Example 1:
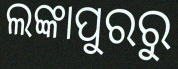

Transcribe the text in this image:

ଲଙ୍କାପୁରରୁ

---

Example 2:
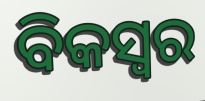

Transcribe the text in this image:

ବିକସ୍ୱର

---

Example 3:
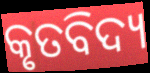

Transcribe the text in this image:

କୃତବିଦ୍ୟ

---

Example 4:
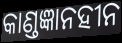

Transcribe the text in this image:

କାଣ୍ଡଜ୍ଞାନହୀନ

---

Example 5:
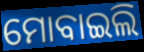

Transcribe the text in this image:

ମୋବାଇଲି